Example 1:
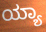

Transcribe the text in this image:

ಯ್ಯಾ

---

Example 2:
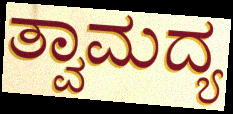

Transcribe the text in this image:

ತ್ವಾಮದ್ಯ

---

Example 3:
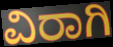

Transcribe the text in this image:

ವಿರಾಗಿ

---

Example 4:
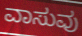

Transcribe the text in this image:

ವಾಸುವು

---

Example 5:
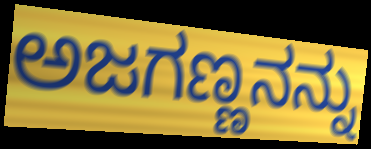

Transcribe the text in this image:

ಅಜಗಣ್ಣನನ್ನು